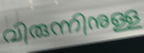
വിരുന്നിനുള്ള